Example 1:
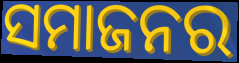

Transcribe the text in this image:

ସମାଜନର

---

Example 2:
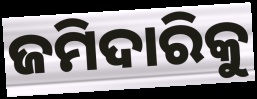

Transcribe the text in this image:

ଜମିଦାରିକୁ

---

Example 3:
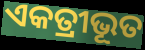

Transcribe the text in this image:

ଏକତ୍ରୀଭୂତ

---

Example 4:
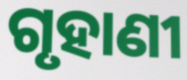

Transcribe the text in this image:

ଗୃହାଣୀ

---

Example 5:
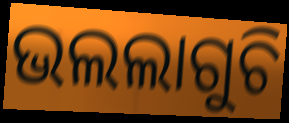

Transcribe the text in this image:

ଭଲଲାଗୁଚି